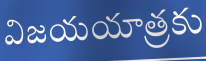
విజయయాత్రకు